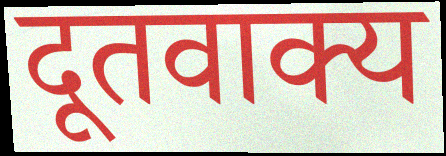
दूतवाक्य